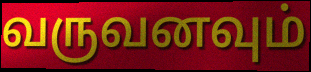
வருவனவும்